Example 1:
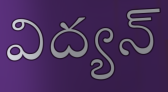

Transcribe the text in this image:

విద్యన్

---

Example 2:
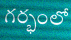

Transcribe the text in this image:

గర్భంలో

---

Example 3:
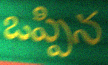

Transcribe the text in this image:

ఒప్పిన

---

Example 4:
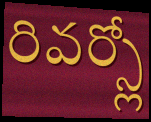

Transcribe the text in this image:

రివర్స్లో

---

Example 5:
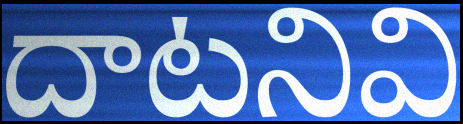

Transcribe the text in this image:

దాటనివి